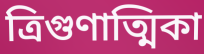
ত্রিগুণাত্মিকা